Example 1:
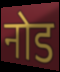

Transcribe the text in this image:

नोड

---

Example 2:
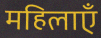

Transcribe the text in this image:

महिलाएँ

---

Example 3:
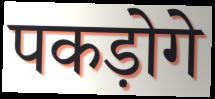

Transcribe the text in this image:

पकड़ोगे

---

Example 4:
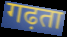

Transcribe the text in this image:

गढ़ता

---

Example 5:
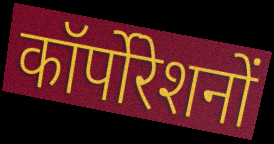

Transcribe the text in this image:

कॉर्पोरेशनों